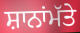
ਸ਼ਾਨਾਂਮੱਤੇ